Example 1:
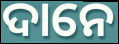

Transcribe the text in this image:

ଦାନେ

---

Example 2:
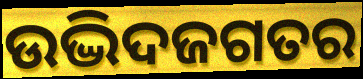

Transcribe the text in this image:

ଉଦ୍ଭିଦଜଗତର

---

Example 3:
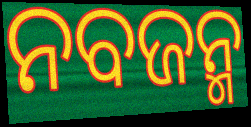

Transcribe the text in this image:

ନବଜନ୍ମ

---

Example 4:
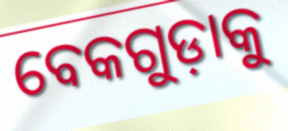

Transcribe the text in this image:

ବେକଗୁଡ଼ାକୁ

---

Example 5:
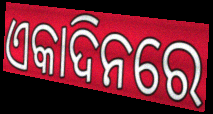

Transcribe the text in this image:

ଏକାଦିନରେ